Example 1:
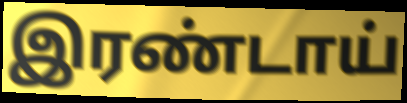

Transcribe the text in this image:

இரண்டாய்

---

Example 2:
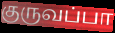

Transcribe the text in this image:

குருவப்பா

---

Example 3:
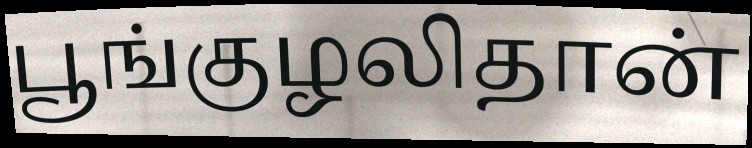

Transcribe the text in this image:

பூங்குழலிதான்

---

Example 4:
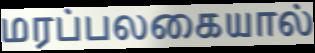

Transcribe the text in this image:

மரப்பலகையால்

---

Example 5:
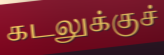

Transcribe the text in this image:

கடலுக்குச்